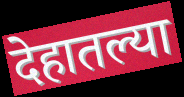
देहातल्या